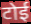
टोई